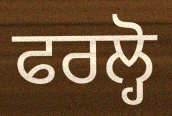
ਫਰਲ੍ਹੋ